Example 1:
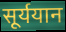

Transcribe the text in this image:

सूर्ययान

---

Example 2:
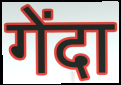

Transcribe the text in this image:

गेंदा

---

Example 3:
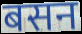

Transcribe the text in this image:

बसन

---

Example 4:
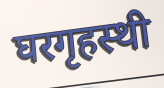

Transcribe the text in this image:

घरगृहस्थी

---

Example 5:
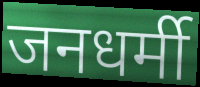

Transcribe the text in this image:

जनधर्मी